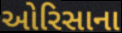
ઓરિસાના